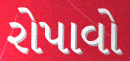
રોપાવો